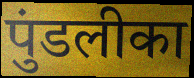
पुंडलीका